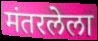
मंतरलेला